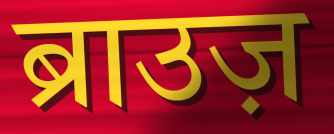
ब्राउज़